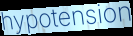
hypotension